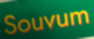
Souvum